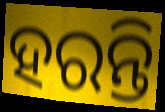
ହରନ୍ତି